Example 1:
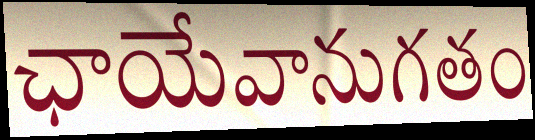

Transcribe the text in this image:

ఛాయేవానుగతం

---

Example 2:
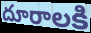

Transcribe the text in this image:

దూరాలకి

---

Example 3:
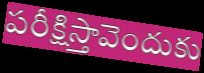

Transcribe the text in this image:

పరీక్షిస్తావెందుకు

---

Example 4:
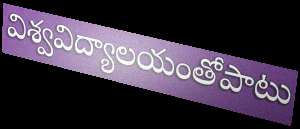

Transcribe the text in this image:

విశ్వవిద్యాలయంతోపాటు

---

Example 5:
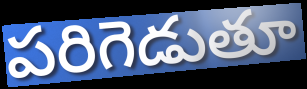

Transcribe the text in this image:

పరిగెడుతూ